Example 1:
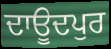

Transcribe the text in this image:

ਦਾਊਦਪੁਰ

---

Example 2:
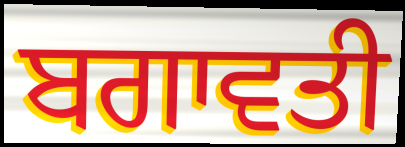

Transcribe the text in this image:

ਬਗਾਵਤੀ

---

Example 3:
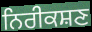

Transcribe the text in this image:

ਨਿਰੀਕਸ਼ਣ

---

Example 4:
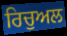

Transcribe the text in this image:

ਰਿਚੁਅਲ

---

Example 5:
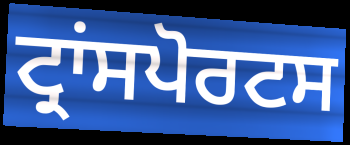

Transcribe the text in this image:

ਟ੍ਰਾਂਸਪੋਰਟਸ